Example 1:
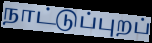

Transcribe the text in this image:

நாட்டுப்புறப்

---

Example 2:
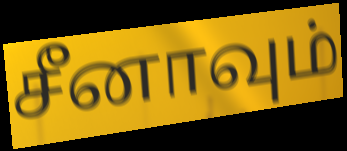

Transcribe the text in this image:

சீனாவும்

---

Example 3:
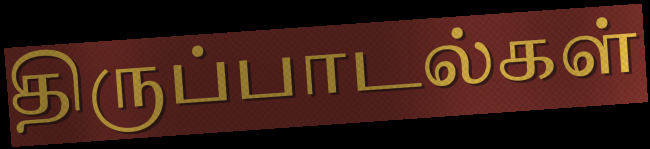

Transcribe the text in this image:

திருப்பாடல்கள்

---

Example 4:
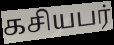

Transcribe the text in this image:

கசியபர்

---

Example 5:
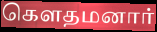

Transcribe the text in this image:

கெளதமனார்